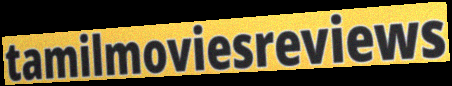
tamilmoviesreviews